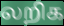
லறிக